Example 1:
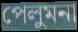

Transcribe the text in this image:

পেলুমনা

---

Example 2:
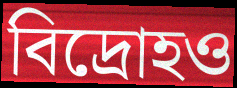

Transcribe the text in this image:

বিদ্রোহও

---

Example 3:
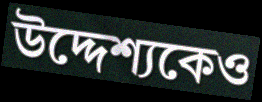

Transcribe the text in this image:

উদ্দেশ্যকেও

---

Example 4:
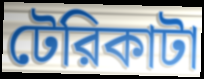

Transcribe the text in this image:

টেরিকাটা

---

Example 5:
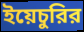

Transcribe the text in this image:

ইয়েচুরির